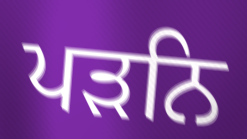
ਪੜਨਿ